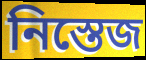
নিস্তেজ